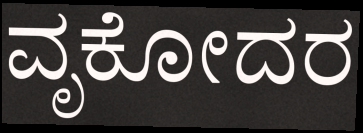
ವೃಕೋದರ